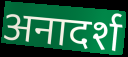
अनादर्श